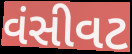
વંસીવટ